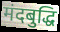
मंदबुद्धि